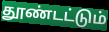
தூண்டட்டும்